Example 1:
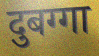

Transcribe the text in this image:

दुबग्गा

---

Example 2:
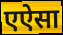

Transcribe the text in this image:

एऐसा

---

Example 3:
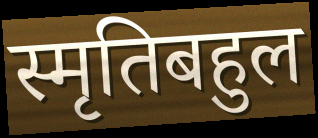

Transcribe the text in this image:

स्मृतिबहुल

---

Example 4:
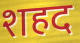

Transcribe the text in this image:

शहद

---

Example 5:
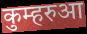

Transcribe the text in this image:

कुम्हरुआ